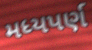
મધ્યપર્ણ